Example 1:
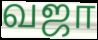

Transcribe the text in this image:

வஜா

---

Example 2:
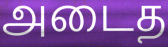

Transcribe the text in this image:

அடைத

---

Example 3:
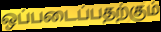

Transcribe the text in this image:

ஒப்படைப்பதற்கும்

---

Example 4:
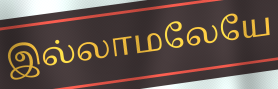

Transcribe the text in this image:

இல்லாமலேயே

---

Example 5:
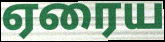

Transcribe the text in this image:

ஏரைய